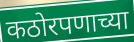
कठोरपणाच्या